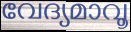
വേദ്യമാവൂ